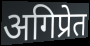
अगिप्रेत